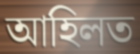
আহিলত